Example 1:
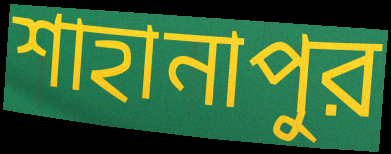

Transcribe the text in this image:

শাহানাপুর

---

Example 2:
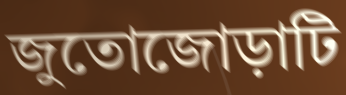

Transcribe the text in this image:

জুতোজোড়াটি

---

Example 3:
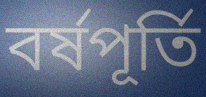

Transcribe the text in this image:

বর্ষপূর্তি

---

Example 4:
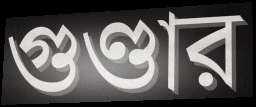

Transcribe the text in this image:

গুণ্ডার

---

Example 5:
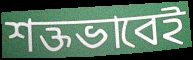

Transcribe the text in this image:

শক্তভাবেই